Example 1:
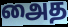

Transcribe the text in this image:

அைத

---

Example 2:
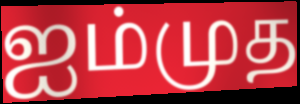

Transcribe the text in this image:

ஐம்முத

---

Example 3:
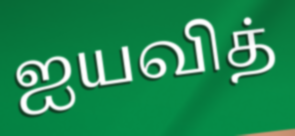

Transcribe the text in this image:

ஐயவித்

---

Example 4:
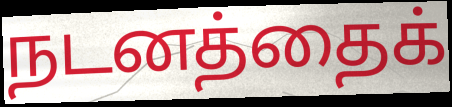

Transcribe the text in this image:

நடனத்தைக்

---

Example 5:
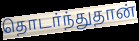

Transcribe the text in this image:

தொடர்ந்துதான்